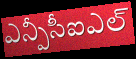
ఎన్పీసీఐఎల్